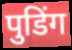
पुडिंग